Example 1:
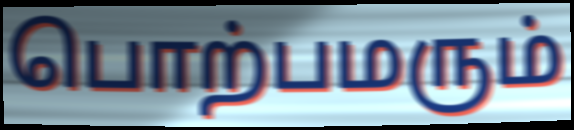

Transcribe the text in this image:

பொற்பமரும்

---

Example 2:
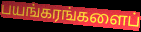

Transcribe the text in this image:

பயங்கரங்களைப்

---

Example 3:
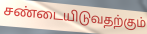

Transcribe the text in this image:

சண்டையிடுவதற்கும்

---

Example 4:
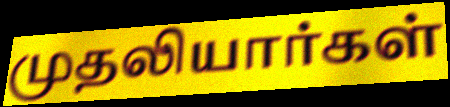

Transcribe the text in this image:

முதலியார்கள்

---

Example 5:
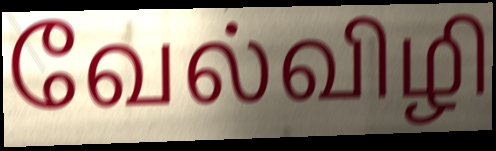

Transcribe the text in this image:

வேல்விழி